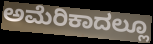
ಅಮೆರಿಕಾದಲ್ಲೂ